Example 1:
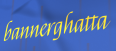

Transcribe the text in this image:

bannerghatta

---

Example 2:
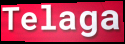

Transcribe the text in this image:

Telaga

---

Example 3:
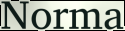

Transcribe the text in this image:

Norma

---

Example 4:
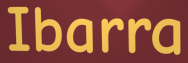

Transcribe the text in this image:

Ibarra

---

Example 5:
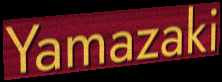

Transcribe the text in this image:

Yamazaki